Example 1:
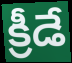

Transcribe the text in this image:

క్రీడే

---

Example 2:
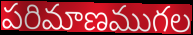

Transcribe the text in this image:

పరిమాణముగల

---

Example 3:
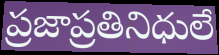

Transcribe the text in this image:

ప్రజాప్రతినిధులే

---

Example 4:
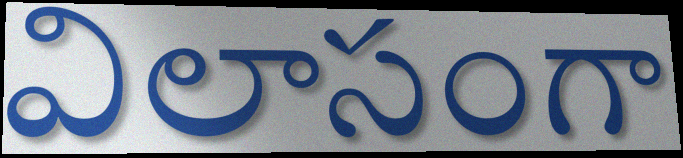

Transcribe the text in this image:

విలాసంగా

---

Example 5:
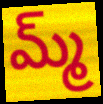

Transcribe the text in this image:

మ్మ్